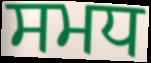
ਸਮਧ